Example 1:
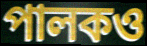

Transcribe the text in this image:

পালকও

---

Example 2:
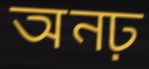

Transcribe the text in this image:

অনঢ়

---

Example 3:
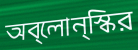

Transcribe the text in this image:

অব্‌লোন্‌স্কির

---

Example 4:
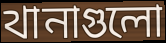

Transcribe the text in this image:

থানাগুলো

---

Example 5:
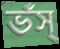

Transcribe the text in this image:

ভঁস্